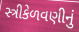
સ્ત્રીકેળવણીનું